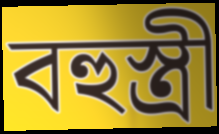
বহুস্ত্ৰী